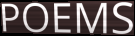
POEMS